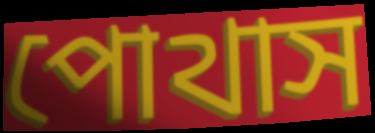
পোথাস